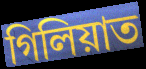
গিলিয়াত